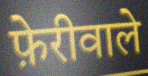
फ़ेरीवाले